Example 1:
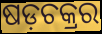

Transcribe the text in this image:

ଷଡ଼ଚକ୍ରର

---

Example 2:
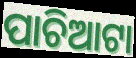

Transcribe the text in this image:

ପାଚିଆଟା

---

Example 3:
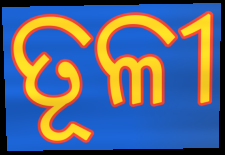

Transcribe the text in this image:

ତୂଳୀ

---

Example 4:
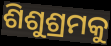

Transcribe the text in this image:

ଶିଶୁଶ୍ରମକୁ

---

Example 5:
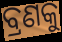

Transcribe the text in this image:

ବ୍ରଣକୁ